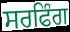
ਸਰਫਿੰਗ